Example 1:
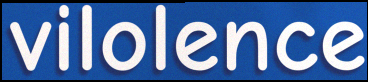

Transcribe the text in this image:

vilolence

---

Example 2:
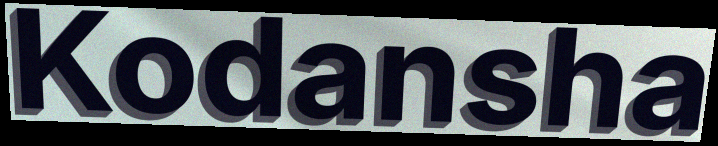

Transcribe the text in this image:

Kodansha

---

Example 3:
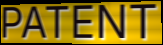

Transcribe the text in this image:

PATENT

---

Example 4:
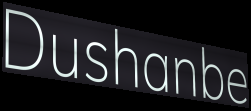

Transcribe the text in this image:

Dushanbe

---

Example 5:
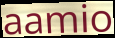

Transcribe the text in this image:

aamio